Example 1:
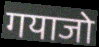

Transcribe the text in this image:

गयाजो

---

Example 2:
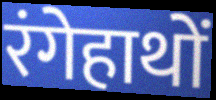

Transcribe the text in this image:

रंगेहाथों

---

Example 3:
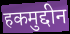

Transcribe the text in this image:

हकमुद्दीन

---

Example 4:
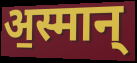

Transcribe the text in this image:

अ॒स्मान्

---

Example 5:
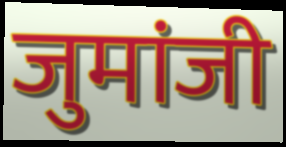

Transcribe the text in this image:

जुमांजी